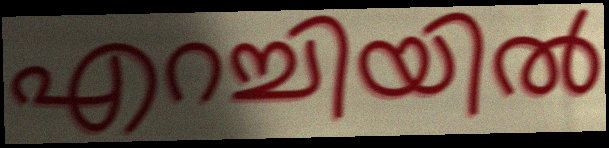
എറച്ചിയിൽ